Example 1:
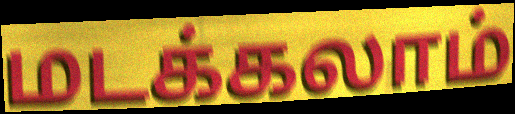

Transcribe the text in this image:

மடக்கலாம்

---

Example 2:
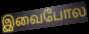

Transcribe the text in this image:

இவைபோல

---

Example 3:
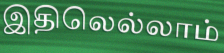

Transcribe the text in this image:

இதிலெல்லாம்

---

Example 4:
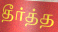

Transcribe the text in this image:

தீர்த்த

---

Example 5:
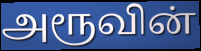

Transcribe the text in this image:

அரூவின்